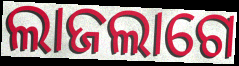
ଲାଜଲାଗେ